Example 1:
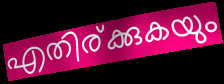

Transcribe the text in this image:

എതിര്ക്കുകയും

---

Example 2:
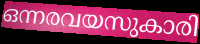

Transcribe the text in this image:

ഒന്നരവയസുകാരി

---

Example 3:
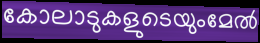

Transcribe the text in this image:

കോലാടുകളുടെയുംമേൽ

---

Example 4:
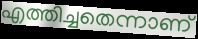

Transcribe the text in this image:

എത്തിച്ചതെന്നാണ്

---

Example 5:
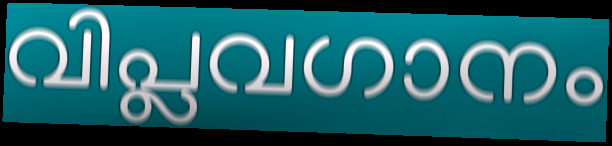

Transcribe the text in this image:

വിപ്ലവഗാനം